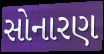
સોનારણ